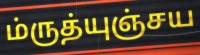
ம்ருத்யுஞ்சய